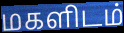
மகளிடம்